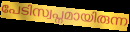
പേടിസ്വപ്നമായിരുന്ന